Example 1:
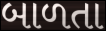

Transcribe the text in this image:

બાળતા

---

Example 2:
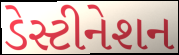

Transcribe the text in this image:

ડેસ્ટીનેશન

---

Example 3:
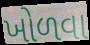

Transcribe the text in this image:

ખોળવા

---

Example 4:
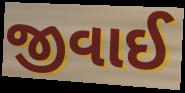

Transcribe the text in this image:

જીવાઈ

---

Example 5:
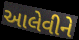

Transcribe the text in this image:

આલેવીને